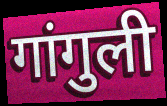
गांगुली